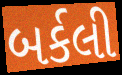
બર્કલી